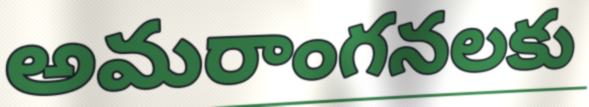
అమరాంగనలకు